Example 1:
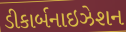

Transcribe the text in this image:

ડીકાર્બનાઇઝેશન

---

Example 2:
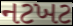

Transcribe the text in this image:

નટખટ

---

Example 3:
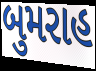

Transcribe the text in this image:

બુમરાહ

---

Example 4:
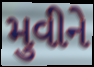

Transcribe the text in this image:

મુવીને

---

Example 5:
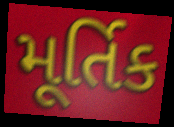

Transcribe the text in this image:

મૂર્તિક